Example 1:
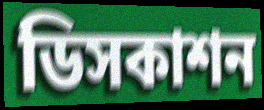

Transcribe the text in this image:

ডিসকাশন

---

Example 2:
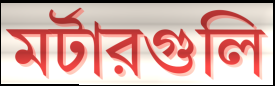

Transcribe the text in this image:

মর্টারগুলি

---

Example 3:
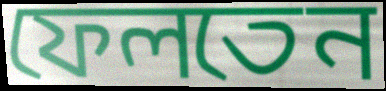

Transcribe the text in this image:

ফেলতেন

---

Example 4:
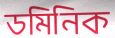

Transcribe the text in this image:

ডমিনিক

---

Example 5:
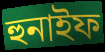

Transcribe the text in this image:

হুনাইফ